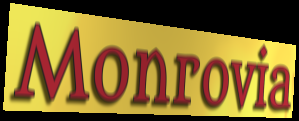
Monrovia